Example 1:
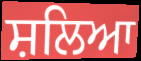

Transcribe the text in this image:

ਸ਼ਲਿਆ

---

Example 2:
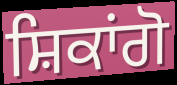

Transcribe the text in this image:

ਸ਼ਿਕਾਂਗੋ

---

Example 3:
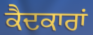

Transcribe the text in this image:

ਕੈਦਕਾਰਾਂ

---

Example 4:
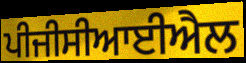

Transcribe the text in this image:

ਪੀਜੀਸੀਆਈਐਲ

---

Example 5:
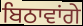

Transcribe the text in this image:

ਬਿਠਾਵਾਂਗੇ